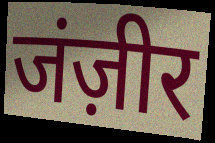
जंज़ीर